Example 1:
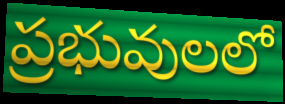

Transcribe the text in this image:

ప్రభువులలో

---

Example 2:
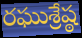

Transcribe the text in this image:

రఘుశ్రేష్ఠ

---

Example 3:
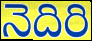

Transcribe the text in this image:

నెదిరి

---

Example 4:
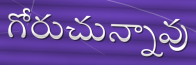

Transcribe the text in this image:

గోరుచున్నావు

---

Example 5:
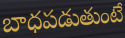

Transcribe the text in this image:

బాధపడుతుంటే